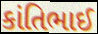
કાંતિભાઈ